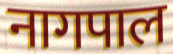
नागपाल